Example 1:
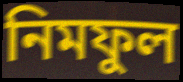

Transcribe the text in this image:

নিমফুল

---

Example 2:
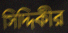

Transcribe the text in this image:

সিদ্দিকীর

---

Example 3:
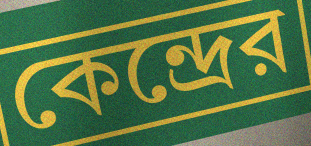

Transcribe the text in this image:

কেন্দ্রের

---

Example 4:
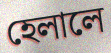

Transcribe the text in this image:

হেলালে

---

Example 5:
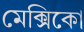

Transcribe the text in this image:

মেক্সিকো